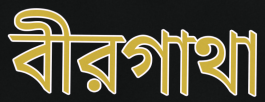
বীরগাথা